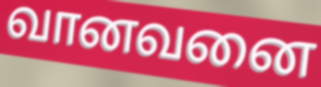
வானவனை